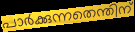
പാർക്കുന്നതെന്തിന്